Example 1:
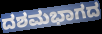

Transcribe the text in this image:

ದಶಮಭಾಗದ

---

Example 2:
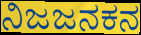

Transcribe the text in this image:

ನಿಜಜನಕನ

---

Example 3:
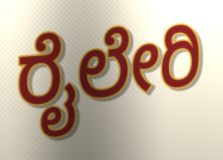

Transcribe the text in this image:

ರೈಲೇರಿ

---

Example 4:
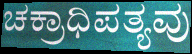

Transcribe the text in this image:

ಚಕ್ರಾಧಿಪತ್ಯವು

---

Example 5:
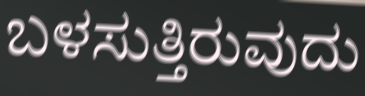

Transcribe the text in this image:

ಬಳಸುತ್ತಿರುವುದು